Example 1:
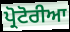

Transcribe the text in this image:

ਪ੍ਰੋਟੋਰੀਆ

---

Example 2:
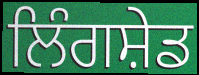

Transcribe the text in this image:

ਲਿੰਗਸ਼ੇਡ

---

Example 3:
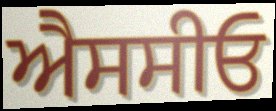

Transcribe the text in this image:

ਐਸਸੀਓ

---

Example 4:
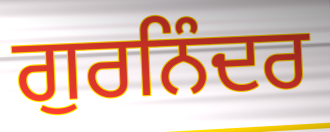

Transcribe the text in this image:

ਗੁਰਨਿੰਦਰ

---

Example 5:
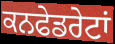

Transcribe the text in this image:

ਕਨਫੇਡਰੇਟਾਂ